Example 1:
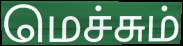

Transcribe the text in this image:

மெச்சும்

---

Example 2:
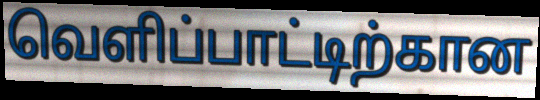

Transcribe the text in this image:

வெளிப்பாட்டிற்கான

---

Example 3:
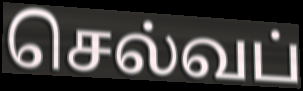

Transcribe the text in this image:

செல்வப்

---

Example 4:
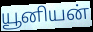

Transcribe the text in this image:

யூனியன்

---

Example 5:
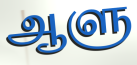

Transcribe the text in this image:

ஆளு